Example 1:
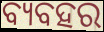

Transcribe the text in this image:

ବ୍ଯବହର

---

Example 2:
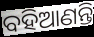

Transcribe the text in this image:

ବହିଆଣନ୍ତି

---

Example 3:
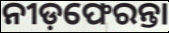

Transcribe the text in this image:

ନୀଡ଼ଫେରନ୍ତା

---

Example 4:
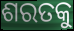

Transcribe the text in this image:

ଶରତକୁ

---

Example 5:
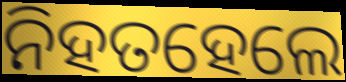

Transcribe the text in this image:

ନିହତହେଲେ